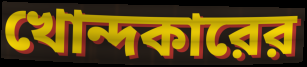
খোন্দকারের